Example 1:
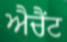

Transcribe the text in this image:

ਐਚੈਂਟ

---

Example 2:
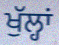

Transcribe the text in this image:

ਖੁੱਲ੍ਹਾਂ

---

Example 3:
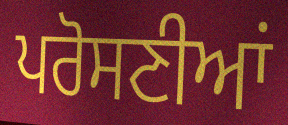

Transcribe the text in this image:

ਪਰੋਸਣੀਆਂ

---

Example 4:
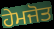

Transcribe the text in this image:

ਹੇਮਜੋਤ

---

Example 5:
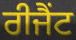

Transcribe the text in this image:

ਰੀਜੈਂਟ